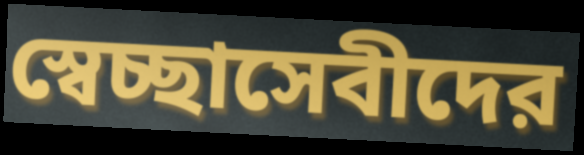
স্বেচ্ছাসেবীদের